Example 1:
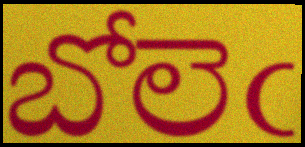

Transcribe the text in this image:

బోలెఁ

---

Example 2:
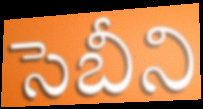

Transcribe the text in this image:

సెబీని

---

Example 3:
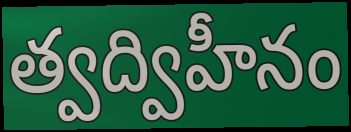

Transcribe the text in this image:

త్వద్విహీనం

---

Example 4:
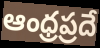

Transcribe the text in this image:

ఆంధ్రప్రదే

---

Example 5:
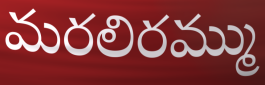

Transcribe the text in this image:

మరలిరమ్ము